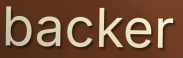
backer